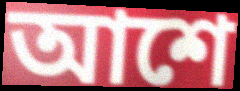
আশে